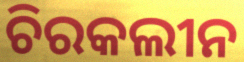
ଚିରକଲୀନ